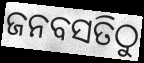
ଜନବସତିଠୁ